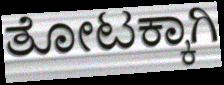
ತೋಟಕ್ಕಾಗಿ